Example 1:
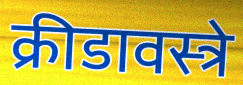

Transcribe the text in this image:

क्रीडावस्त्रे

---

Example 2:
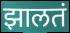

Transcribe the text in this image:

झालतं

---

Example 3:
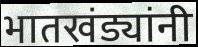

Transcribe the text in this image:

भातखंड्यांनी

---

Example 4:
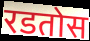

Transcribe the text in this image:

रडतोस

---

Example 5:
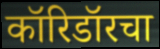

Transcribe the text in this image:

कॉरिडॉरचा